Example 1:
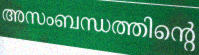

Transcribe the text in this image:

അസംബന്ധത്തിന്റെ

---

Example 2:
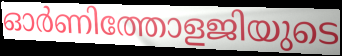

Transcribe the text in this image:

ഓർണിത്തോളജിയുടെ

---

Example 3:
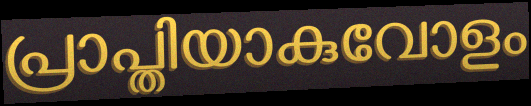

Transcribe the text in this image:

പ്രാപ്തിയാകുവോളം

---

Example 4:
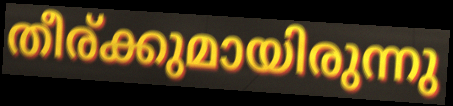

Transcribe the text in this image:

തീര്ക്കുമായിരുന്നു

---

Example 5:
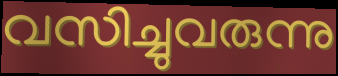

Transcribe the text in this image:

വസിച്ചുവരുന്നു